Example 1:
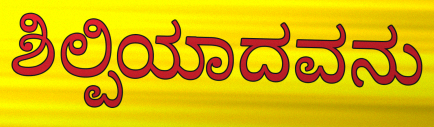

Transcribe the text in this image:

ಶಿಲ್ಪಿಯಾದವನು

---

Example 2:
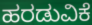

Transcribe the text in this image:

ಹರಡುವಿಕೆ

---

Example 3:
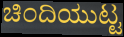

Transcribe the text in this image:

ಚಿಂದಿಯುಟ್ಟ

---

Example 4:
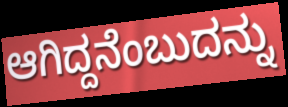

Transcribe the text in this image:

ಆಗಿದ್ದನೆಂಬುದನ್ನು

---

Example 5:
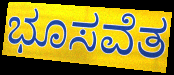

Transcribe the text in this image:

ಭೂಸವೆತ